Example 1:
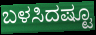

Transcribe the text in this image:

ಬಳಸಿದಷ್ಟೂ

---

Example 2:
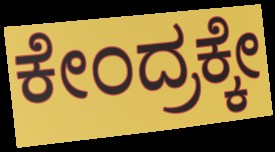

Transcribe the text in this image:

ಕೇಂದ್ರಕ್ಕೇ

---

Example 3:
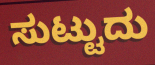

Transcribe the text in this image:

ಸುಟ್ಟುದು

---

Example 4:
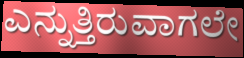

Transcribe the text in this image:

ಎನ್ನುತ್ತಿರುವಾಗಲೇ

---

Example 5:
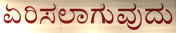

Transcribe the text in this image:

ಏರಿಸಲಾಗುವುದು